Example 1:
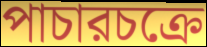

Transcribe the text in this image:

পাচারচক্রে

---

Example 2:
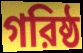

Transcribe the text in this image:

গরিষ্ঠ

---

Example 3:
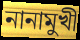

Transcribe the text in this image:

নানামুখী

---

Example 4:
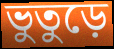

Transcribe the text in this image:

ভুতুড়ে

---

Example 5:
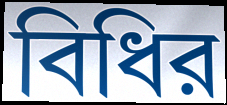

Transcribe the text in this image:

বিধির